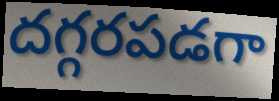
దగ్గరపడగా